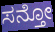
ಸನ್ತೋ